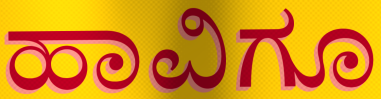
ಹಾವಿಗೂ